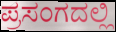
ಪ್ರಸಂಗದಲ್ಲಿ